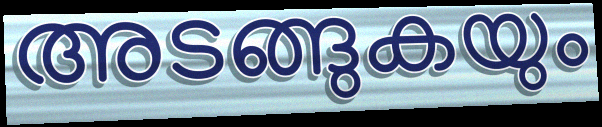
അടങ്ങുകയും